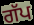
ਗੱਪ